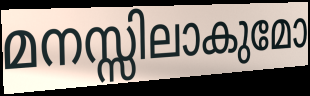
മനസ്സിലാകുമോ